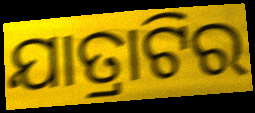
ଯାତ୍ରାଟିର